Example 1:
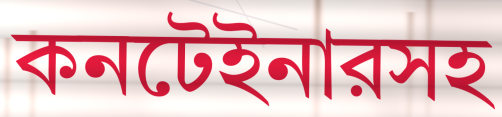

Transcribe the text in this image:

কনটেইনারসহ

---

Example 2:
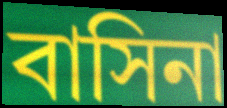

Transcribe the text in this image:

বাসিনা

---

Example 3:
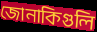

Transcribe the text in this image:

জোনাকিগুলি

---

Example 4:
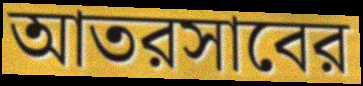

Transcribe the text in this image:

আতরসাবের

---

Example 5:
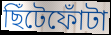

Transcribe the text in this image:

ছিঁটেফোঁটা